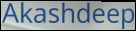
Akashdeep